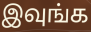
இவுங்க